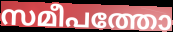
സമീപത്തോ